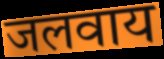
जलवाय